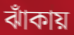
ঝাঁকায়